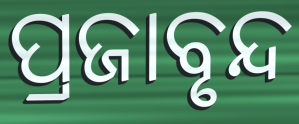
ପ୍ରଜାବୃନ୍ଦ